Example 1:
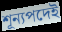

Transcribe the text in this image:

শূন্যপদেই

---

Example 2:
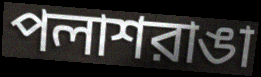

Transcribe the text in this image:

পলাশরাঙা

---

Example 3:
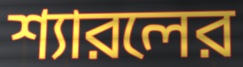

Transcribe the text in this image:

শ্যারলের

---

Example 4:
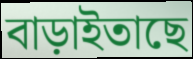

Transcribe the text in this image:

বাড়াইতাছে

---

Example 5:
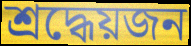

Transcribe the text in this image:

শ্রদ্ধেয়জন